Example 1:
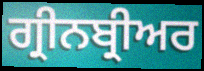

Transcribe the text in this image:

ਗ੍ਰੀਨਬ੍ਰੀਅਰ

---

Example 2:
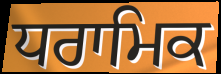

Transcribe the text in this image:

ਧਰਾਮਿਕ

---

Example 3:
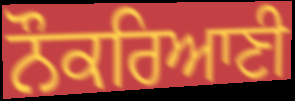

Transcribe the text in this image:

ਨੌਕਰਿਆਣੀ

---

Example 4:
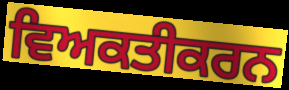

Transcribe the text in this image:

ਵਿਅਕਤੀਕਰਨ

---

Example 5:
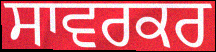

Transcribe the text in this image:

ਸਾਵਰਕਰ